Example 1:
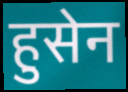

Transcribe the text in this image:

हुसेन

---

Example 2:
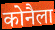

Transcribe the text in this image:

कोनैला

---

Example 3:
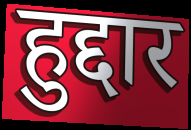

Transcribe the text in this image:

हुद्दार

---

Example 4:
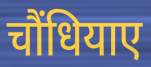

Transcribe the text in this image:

चौंधियाए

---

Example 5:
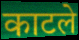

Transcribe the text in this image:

काटले